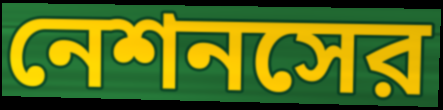
নেশনসের